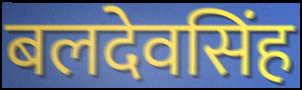
बलदेवसिंह